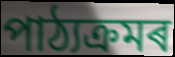
পাঠ্যক্ৰমৰ